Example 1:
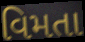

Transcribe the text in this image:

વિમતા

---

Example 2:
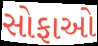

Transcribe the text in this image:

સોફાઓ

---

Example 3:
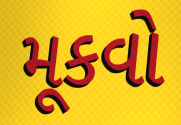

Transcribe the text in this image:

મૂકવો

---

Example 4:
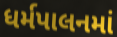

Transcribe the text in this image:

ધર્મપાલનમાં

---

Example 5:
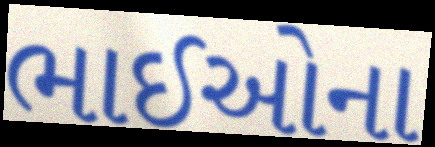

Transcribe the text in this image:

ભાઈઓના